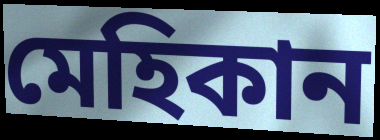
মেহিকান